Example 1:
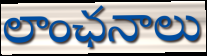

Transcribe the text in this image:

లాంఛనాలు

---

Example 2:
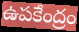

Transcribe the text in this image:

ఉపకేంద్రం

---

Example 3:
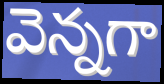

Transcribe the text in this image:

వెన్నగా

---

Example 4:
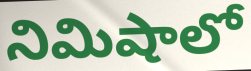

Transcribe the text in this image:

నిమిషాలో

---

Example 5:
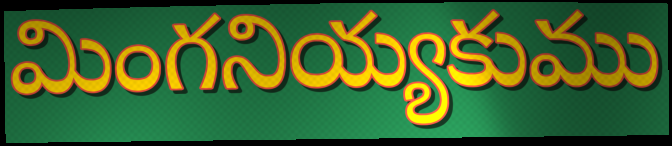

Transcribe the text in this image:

మింగనియ్యకుము